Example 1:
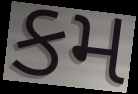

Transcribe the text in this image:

કમ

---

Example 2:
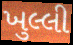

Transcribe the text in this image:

ખુલ્લી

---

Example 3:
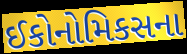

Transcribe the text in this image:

ઈકોનોમિકસના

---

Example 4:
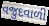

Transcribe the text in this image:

વજુદવાળી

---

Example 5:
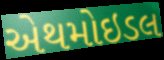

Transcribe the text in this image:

એથમોઇડલ